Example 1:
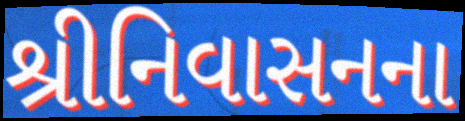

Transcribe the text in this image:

શ્રીનિવાસનના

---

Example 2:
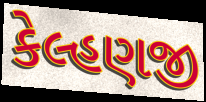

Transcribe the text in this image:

કેલ્હણજી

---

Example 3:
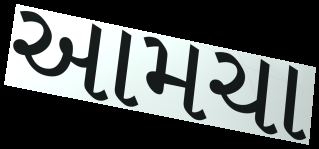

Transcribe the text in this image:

આમચા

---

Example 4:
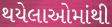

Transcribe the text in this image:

થયેલાઓમાંથી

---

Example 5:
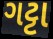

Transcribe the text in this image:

ગટ્ટા